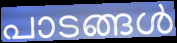
പാടങ്ങൾ